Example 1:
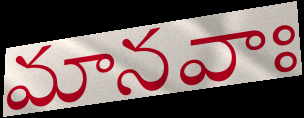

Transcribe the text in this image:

మానవాః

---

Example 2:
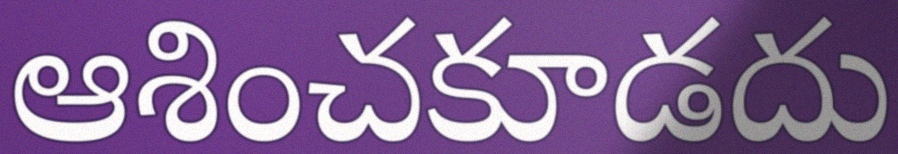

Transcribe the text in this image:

ఆశించకూడదు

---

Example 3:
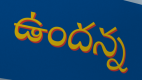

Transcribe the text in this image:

ఉందన్న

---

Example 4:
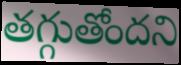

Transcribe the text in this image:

తగ్గుతోందని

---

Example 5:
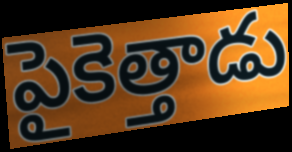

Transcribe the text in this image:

పైకెత్తాడు